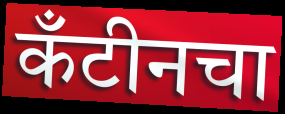
कँटीनचा